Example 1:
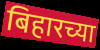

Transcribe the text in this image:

बिहारच्या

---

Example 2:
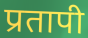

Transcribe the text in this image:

प्रतापी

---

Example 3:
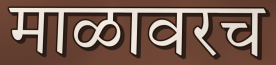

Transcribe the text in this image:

माळावरच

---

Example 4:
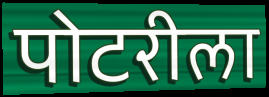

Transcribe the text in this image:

पोटरीला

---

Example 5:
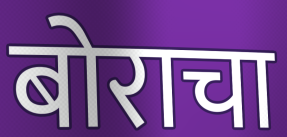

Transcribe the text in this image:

बोराचा